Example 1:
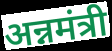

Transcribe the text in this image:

अन्नमंत्री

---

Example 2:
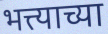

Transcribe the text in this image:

भत्त्याच्या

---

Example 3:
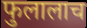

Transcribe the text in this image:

फुलालाच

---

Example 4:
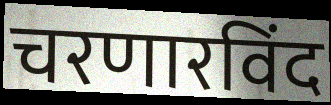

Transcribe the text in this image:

चरणारविंद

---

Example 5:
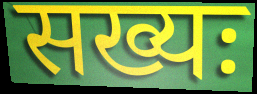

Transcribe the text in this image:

सख्यः